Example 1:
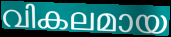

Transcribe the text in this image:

വികലമായ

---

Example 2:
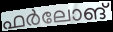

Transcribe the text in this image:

ഫർലോങ്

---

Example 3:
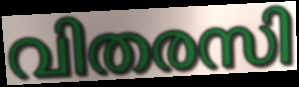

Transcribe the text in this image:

വിതരസി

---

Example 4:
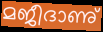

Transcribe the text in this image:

മജീദാണു്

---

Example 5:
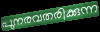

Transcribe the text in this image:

പുനരവതരിക്കുന്ന